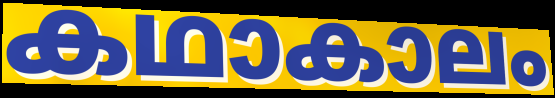
കഥാകാലം